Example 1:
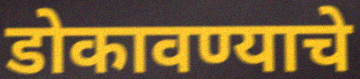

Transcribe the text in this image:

डोकावण्याचे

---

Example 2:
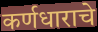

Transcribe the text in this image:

कर्णधाराचे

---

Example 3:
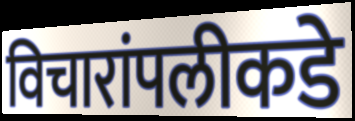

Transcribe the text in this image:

विचारांपलीकडे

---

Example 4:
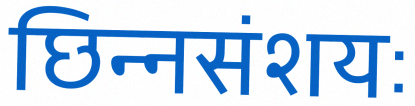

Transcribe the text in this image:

छिन्नसंशयः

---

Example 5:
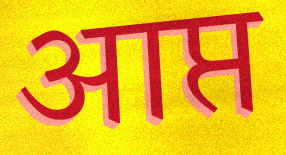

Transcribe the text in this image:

आप्त